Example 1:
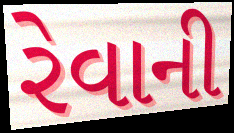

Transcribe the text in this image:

રેવાની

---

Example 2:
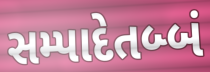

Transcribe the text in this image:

સમ્પાદેતબ્બં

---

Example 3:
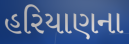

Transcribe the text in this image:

હરિયાણના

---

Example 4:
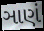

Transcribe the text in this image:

ઞાણં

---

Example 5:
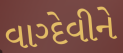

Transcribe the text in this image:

વાગ્દેવીને